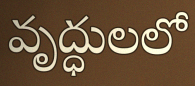
వృద్ధులలో